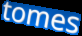
tomes